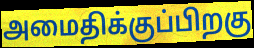
அமைதிக்குப்பிறகு